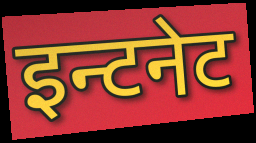
इन्टनेट